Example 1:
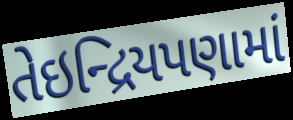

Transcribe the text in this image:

તેઇન્દ્રિયપણામાં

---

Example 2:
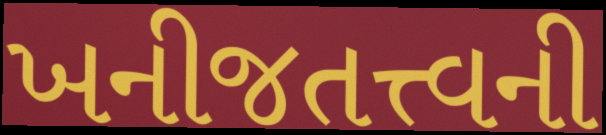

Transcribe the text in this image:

ખનીજતત્ત્વની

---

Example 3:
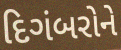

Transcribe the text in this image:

દિગંબરોને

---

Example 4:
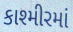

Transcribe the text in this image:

કાશ્મીરમાં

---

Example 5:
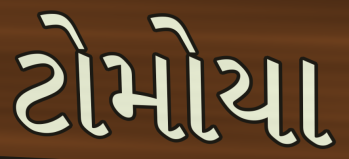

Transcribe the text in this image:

ટોમોયા